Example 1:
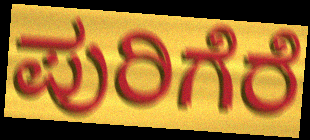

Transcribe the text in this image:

ಪುರಿಗೆರೆ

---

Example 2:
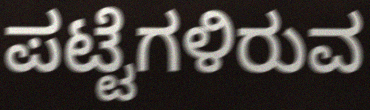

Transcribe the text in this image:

ಪಟ್ಟೆಗಳಿರುವ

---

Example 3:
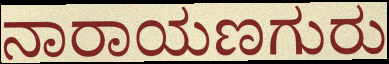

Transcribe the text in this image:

ನಾರಾಯಣಗುರು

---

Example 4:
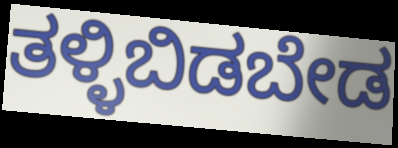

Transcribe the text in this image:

ತಳ್ಳಿಬಿಡಬೇಡ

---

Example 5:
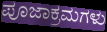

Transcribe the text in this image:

ಪೂಜಾಕ್ರಮಗಳು